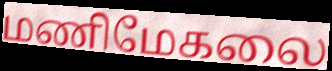
மணிமேகலை